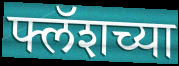
फ्लॅशच्या